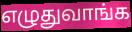
எழுதுவாங்க